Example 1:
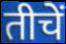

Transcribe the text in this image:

तीचें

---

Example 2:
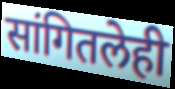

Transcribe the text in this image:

सांगितलेही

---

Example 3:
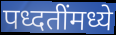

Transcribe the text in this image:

पध्दतींमध्ये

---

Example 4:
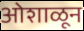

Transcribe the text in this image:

ओशाळून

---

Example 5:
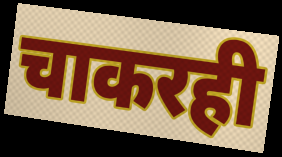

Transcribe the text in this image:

चाकरही